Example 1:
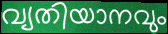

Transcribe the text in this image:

വ്യതിയാനവും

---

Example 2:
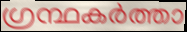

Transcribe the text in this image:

ഗ്രന്ഥകർത്താ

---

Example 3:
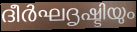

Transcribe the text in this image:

ദീർഘദൃഷ്ടിയും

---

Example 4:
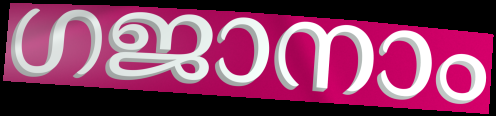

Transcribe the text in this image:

ഗജാനാം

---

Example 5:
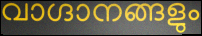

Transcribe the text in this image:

വാഗ്ദാനങ്ങളും